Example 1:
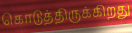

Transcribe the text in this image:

கொடுத்திருக்கிறது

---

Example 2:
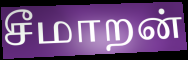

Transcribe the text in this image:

சீமாறன்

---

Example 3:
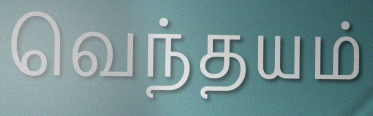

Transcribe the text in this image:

வெந்தயம்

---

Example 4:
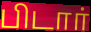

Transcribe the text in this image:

பிடார்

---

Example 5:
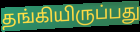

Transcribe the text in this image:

தங்கியிருப்பது